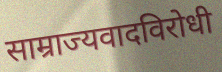
साम्राज्यवादविरोधी